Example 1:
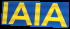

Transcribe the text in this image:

IAIA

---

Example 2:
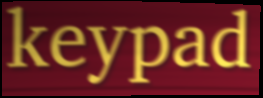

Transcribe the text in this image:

keypad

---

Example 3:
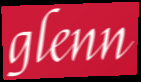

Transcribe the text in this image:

glenn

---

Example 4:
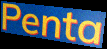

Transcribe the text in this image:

Penta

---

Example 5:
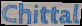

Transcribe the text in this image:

Chittal